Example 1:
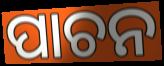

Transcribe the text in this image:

ପାଚନ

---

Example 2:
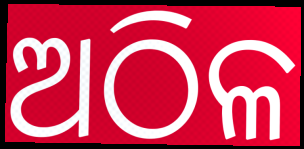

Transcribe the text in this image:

ଅଠିଳ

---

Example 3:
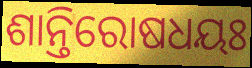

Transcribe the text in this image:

ଶାନ୍ତିରୋଷଧୟଃ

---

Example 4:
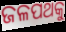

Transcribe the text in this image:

ଜଳପଥକୁ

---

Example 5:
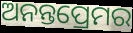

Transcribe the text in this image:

ଅନନ୍ତପ୍ରେମର